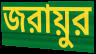
জরায়ুর